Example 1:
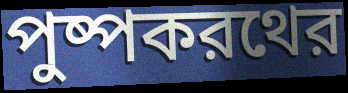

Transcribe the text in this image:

পুষ্পকরথের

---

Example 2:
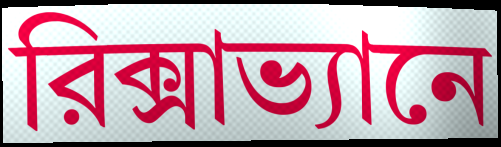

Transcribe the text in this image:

রিক্সাভ্যানে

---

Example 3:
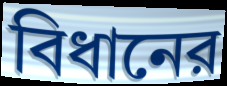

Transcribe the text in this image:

বিধানের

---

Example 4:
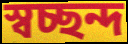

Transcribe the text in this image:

স্বচ্ছন্দ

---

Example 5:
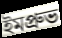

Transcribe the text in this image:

ইমপ্রুভ